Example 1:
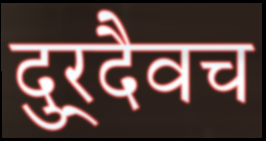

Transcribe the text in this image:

दुर्दैवच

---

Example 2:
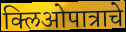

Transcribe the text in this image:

क्लिओपात्राचे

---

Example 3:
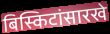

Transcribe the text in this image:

बिस्किटांसारखे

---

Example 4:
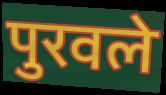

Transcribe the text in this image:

पुरवले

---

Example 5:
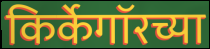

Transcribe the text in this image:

किर्केगॉरच्या